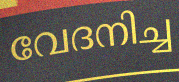
വേദനിച്ച